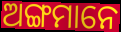
ଅଙ୍ଗମାନେ